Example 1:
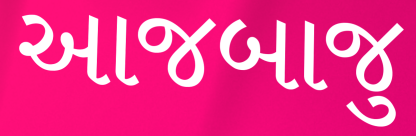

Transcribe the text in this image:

આજબાજુ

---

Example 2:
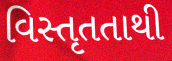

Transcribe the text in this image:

વિસ્તૃતતાથી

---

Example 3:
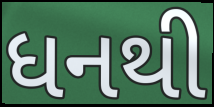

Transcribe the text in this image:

ધનથી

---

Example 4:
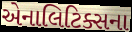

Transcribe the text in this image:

એનાલિટિક્સના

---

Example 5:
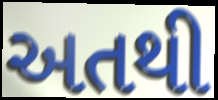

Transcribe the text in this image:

અતથી